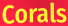
Corals